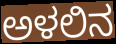
ಅಳಲಿನ